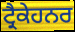
ਟ੍ਰੈਕੇਹਨਰ